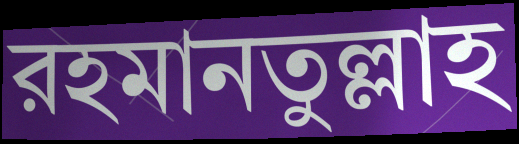
রহমানতুল্লাহ